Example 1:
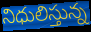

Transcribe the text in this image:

నిధులిస్తున్న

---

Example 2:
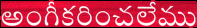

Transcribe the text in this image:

అంగీకరించలేము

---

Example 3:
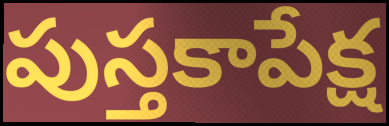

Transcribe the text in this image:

పుస్తకాపేక్ష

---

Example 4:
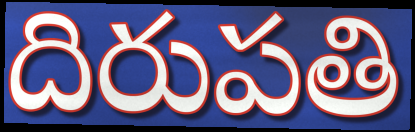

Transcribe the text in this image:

దిరుపతి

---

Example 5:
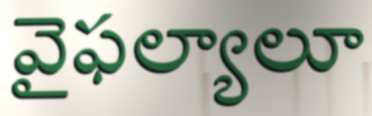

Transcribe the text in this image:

వైఫల్యాలూ